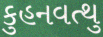
કુહનવત્થુ